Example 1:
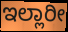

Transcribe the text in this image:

ಇಲ್ಲಾರೀ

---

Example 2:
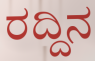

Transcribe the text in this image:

ರದ್ದಿನ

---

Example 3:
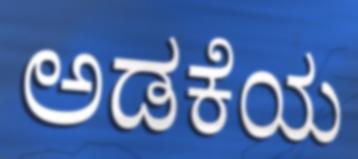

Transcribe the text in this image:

ಅಡಕೆಯ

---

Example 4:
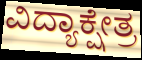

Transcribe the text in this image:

ವಿದ್ಯಾಕ್ಷೇತ್ರ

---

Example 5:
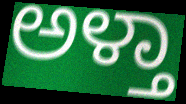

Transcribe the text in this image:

ಅಳ್ತಾ